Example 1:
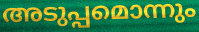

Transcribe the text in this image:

അടുപ്പമൊന്നും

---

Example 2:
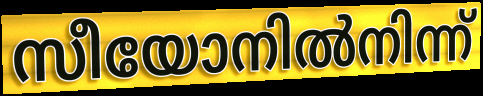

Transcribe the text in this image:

സീയോനിൽനിന്ന്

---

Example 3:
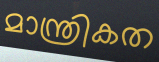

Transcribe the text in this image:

മാന്ത്രികത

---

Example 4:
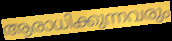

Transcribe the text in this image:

ആരാധിക്കുന്നവരും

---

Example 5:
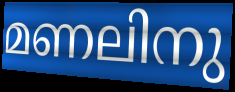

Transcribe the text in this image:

മണലിനു